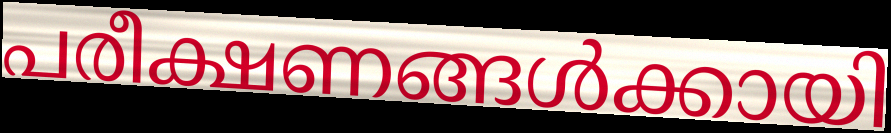
പരീക്ഷണങ്ങൾക്കായി